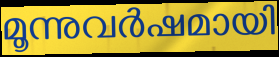
മൂന്നുവർഷമായി